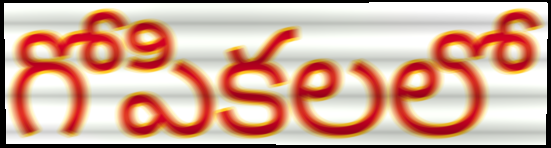
గోపికలలో